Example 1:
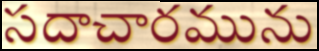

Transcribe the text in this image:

సదాచారమును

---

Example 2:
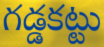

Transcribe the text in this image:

గడ్డకట్టు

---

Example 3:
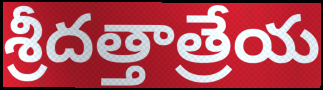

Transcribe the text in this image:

శ్రీదత్తాత్రేయ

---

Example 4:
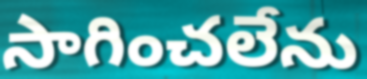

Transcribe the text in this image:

సాగించలేను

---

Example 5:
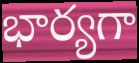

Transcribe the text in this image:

భార్యగా